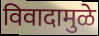
विवादामुळे